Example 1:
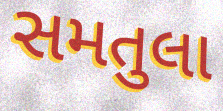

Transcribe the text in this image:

સમતુલા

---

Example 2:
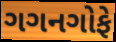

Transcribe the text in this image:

ગગનગોફે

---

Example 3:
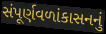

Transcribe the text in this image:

સંપૂર્ણવળાંકાસનનું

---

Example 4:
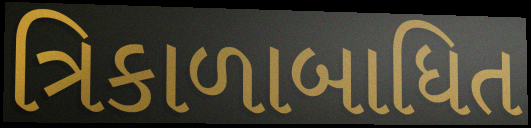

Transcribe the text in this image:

ત્રિકાળાબાધિત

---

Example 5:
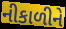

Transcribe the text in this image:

નીકાળીને